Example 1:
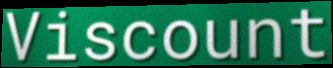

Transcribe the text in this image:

Viscount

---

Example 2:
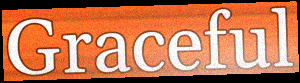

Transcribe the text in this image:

Graceful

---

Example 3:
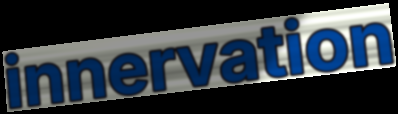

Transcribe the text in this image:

innervation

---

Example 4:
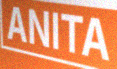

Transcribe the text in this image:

ANITA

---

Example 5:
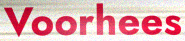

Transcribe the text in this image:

Voorhees